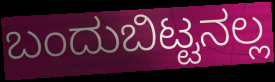
ಬಂದುಬಿಟ್ಟನಲ್ಲ